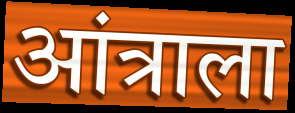
आंत्राला